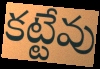
కట్టేవు